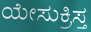
ಯೇಸುಕ್ರಿಸ್ತ